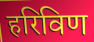
हरिविण